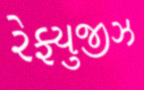
રેફ્યુજીઝ